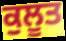
ਕੁਲੂਤ